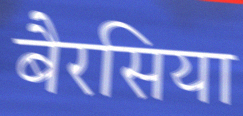
बैरसिया